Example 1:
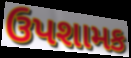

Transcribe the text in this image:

ઉપશામક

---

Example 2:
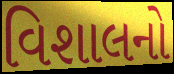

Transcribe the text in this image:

વિશાલનો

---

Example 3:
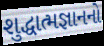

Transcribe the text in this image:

શુદ્ધાત્મજ્ઞાનનો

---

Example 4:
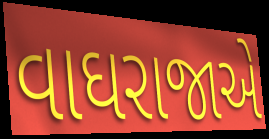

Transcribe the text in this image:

વાઘરાજાએ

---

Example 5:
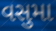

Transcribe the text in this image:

વસુમા